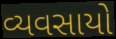
વ્યવસાયો